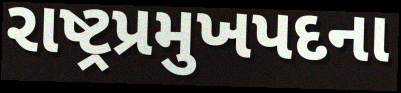
રાષ્ટ્રપ્રમુખપદના